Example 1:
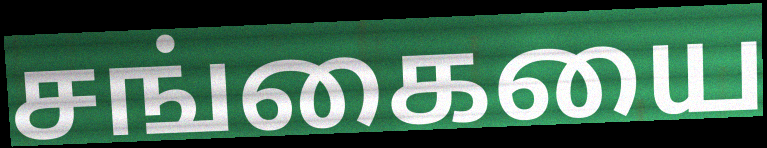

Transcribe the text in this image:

சங்கையை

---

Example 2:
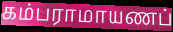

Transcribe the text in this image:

கம்பராமாயணப்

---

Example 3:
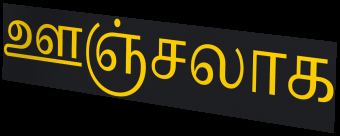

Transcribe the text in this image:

ஊஞ்சலாக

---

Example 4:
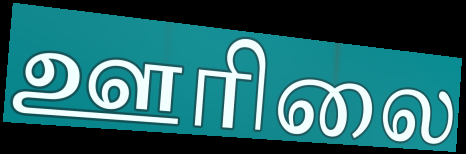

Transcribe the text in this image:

ஊரிலை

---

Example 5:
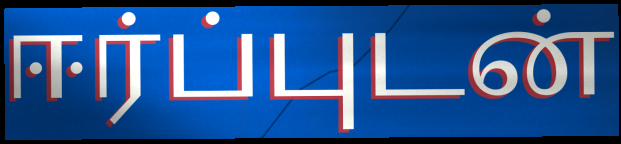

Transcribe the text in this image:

ஈர்ப்புடன்